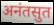
अनंतसुत